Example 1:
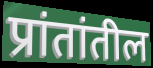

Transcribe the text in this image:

प्रांतांतील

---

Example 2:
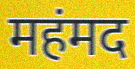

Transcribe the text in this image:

महंमद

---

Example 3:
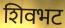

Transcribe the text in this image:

शिवभट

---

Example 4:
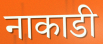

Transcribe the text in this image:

नाकाडी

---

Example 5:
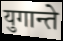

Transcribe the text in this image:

युगान्ते